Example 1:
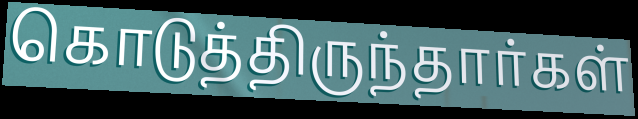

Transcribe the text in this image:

கொடுத்திருந்தார்கள்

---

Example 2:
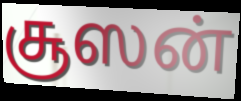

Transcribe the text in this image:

சூஸன்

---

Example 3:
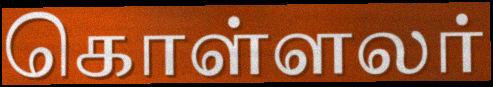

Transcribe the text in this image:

கொள்ளலர்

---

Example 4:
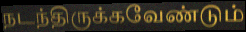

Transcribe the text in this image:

நடந்திருக்கவேண்டும்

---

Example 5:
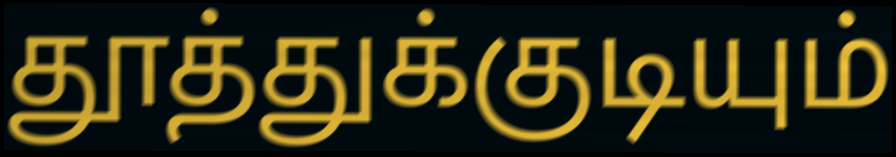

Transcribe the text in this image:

தூத்துக்குடியும்